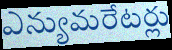
ఎన్యుమరేటర్లు